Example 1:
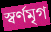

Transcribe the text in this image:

স্বর্ণমৃগ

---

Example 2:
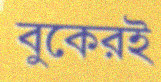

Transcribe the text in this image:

বুকেরই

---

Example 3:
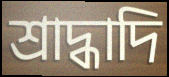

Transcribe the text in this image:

শ্রাদ্ধাদি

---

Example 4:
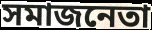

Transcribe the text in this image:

সমাজনেতা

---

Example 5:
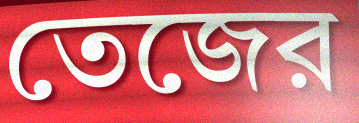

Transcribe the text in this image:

তেজের